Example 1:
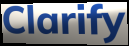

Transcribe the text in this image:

Clarify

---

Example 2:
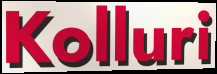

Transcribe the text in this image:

Kolluri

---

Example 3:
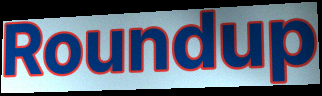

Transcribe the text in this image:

Roundup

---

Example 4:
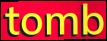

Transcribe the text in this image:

tomb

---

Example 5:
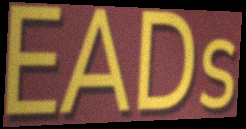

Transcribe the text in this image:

EADs